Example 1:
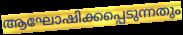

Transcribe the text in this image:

ആഘോഷിക്കപ്പെടുന്നതും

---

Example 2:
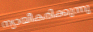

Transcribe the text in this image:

ന്യായീകരിക്കുന്നു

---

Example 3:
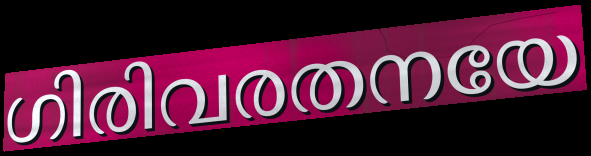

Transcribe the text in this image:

ഗിരിവരതനയേ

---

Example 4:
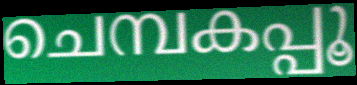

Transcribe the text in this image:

ചെമ്പകപ്പൂ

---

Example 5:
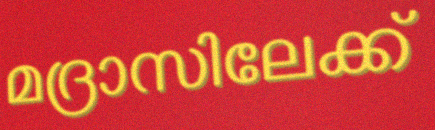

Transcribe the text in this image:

മദ്രാസിലേക്ക്